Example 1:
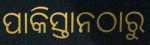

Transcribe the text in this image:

ପାକିସ୍ତାନଠାରୁ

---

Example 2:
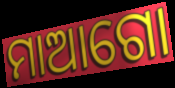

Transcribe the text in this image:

ମାଆଗୋ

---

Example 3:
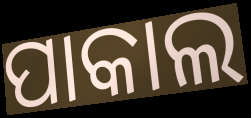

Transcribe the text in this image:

ପାକାଲ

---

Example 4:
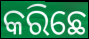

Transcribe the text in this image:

କରିଛେ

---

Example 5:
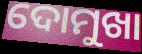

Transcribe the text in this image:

ଦୋମୁଖା